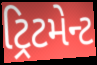
ટ્રિટમેન્ટ